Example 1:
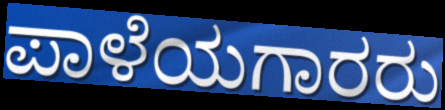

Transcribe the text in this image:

ಪಾಳೆಯಗಾರರು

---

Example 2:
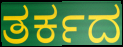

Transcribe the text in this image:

ತರ್ಕದ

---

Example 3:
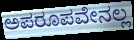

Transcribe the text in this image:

ಅಪರೂಪವೇನಲ್ಲ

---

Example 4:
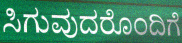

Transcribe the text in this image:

ಸಿಗುವುದರೊಂದಿಗೆ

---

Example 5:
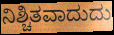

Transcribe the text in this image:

ನಿಶ್ಚಿತವಾದುದು